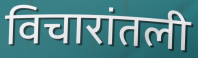
विचारांतली